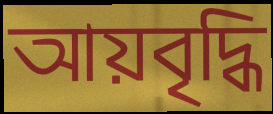
আয়বৃদ্ধি